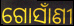
ଗୋସାଁଣୀ